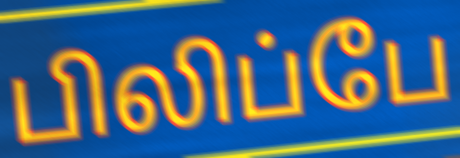
பிலிப்பே